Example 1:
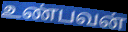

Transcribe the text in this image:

உண்பவன்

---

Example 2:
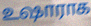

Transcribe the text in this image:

உஷாராக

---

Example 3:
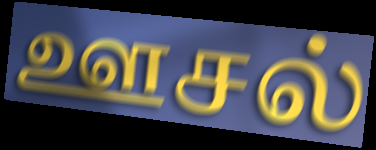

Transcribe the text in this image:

ஊசல்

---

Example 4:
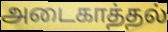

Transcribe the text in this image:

அடைகாத்தல்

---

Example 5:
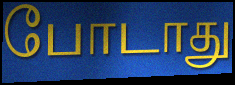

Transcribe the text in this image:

போடாது